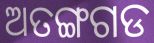
ଅତଙ୍ଗଗଡ